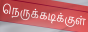
நெருக்கடிக்குள்